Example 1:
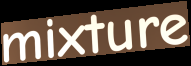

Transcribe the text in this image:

mixture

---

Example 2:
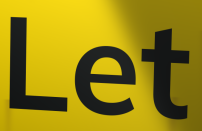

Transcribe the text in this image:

Let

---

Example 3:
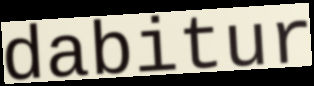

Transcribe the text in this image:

dabitur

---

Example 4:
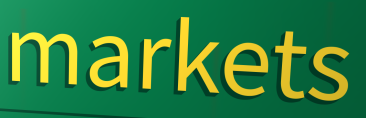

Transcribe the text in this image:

markets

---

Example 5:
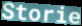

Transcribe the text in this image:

Storie